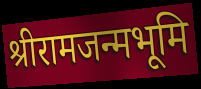
श्रीरामजन्मभूमि